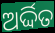
ଅର୍ଦ୍ଦିତ